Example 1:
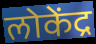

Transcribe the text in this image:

लोकेंद्र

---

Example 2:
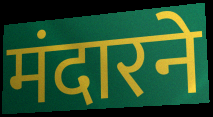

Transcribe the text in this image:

मंदारने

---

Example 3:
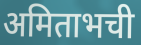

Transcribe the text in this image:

अमिताभची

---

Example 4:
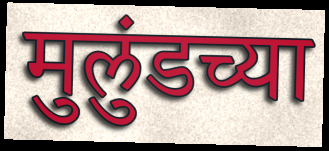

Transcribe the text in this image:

मुलुंडच्या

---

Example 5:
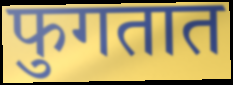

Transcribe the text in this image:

फुगतात